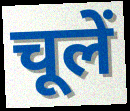
चूलें